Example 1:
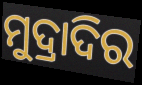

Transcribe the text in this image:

ମୁଦ୍ରାଦିର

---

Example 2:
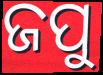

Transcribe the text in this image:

ଜପୁ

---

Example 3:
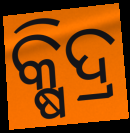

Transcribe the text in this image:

କ୍ଷିଦ୍ର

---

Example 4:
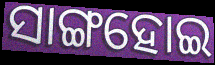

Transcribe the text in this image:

ସାଙ୍ଗହୋଇ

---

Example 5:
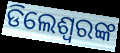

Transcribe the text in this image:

ଡିଲେଶ୍ଵରଙ୍କ